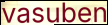
vasuben